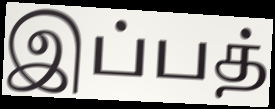
இப்பத்